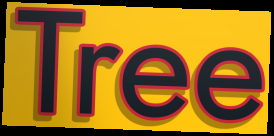
Tree